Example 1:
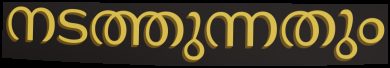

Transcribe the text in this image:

നടത്തുന്നതും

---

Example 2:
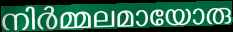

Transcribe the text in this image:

നിർമ്മലമായോരു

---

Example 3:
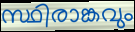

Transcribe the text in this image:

സ്ഥിരാങ്കവും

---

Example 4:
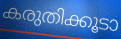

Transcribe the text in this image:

കരുതിക്കൂടാ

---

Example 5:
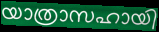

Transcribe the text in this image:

യാത്രാസഹായി